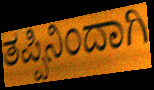
ತಪ್ಪಿನಿಂದಾಗಿ